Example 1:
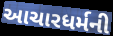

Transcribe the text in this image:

આચારધર્મની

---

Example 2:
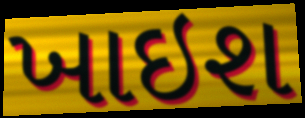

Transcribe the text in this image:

ખાઇશ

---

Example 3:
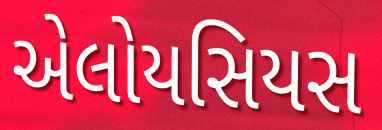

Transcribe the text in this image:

એલોયસિયસ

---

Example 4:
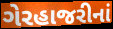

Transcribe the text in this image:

ગેરહાજરીનાં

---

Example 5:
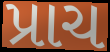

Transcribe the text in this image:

પ્રાચ